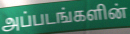
அப்படங்களின்